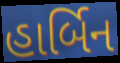
હાર્બિન